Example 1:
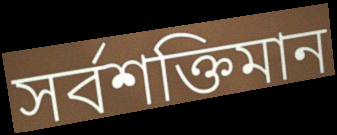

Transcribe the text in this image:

সর্বশক্তিমান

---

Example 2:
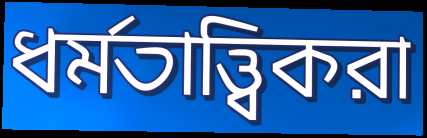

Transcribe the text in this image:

ধর্মতাত্ত্বিকরা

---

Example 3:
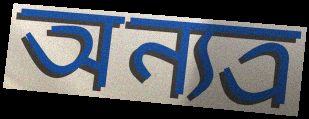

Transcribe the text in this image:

অন্যত্র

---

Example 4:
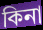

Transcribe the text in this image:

কিনা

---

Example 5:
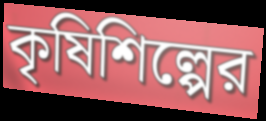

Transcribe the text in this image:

কৃষিশিল্পের